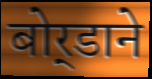
बोर्डाने